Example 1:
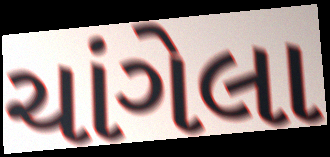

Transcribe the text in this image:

ચાંગેલા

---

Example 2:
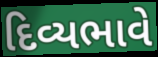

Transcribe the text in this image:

દિવ્યભાવે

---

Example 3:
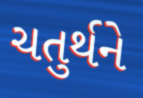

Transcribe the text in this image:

ચતુર્થને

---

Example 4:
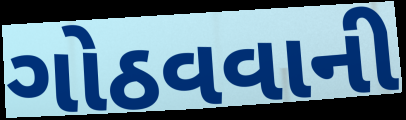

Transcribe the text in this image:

ગોઠવવાની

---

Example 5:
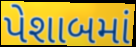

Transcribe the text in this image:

પેશાબમાં